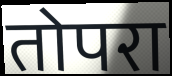
तोपरा